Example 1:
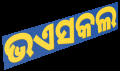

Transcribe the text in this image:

ଭଏସକଲ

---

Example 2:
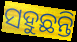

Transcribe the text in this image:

ସହୁଛନ୍ତି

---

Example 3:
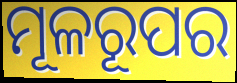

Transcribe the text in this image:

ମୂଳରୂପର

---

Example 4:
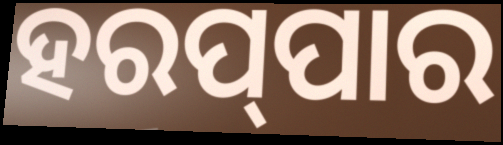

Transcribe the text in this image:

ହରପ୍‌ପାର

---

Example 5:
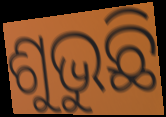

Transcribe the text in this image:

ଶୁଭୁଛି